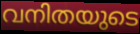
വനിതയുടെ